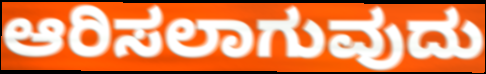
ಆರಿಸಲಾಗುವುದು